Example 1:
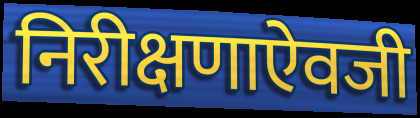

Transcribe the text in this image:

निरीक्षणाऐवजी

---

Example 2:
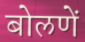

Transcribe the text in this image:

बोलणें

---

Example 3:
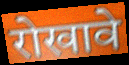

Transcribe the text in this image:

रोखावे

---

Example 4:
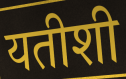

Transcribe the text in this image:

यतीशी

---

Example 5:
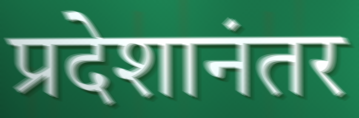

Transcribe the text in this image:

प्रदेशानंतर